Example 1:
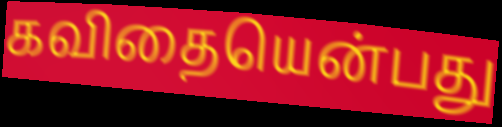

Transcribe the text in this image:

கவிதையென்பது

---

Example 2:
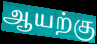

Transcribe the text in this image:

ஆயற்கு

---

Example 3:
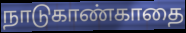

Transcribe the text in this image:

நாடுகாண்காதை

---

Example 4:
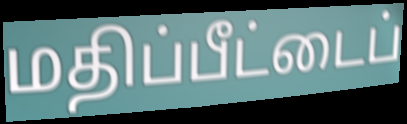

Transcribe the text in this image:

மதிப்பீட்டைப்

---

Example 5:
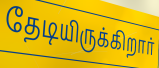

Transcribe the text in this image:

தேடியிருக்கிறார்